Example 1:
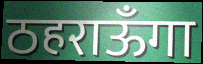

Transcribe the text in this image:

ठहराऊँगा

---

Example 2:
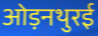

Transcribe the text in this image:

ओड़नथुरई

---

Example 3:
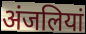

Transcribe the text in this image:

अंजलियां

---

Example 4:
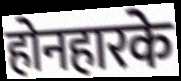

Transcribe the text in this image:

होनहारके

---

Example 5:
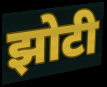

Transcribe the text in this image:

झोटी